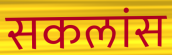
सकलांस